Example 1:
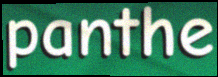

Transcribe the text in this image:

panthe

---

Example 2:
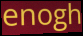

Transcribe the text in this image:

enogh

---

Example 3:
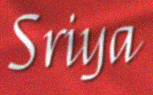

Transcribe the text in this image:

Sriya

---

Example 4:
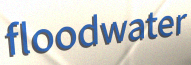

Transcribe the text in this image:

floodwater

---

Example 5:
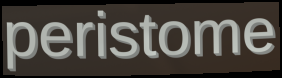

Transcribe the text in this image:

peristome